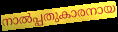
നാൽപ്പതുകാരനായ